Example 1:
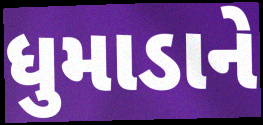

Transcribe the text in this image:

ધુમાડાને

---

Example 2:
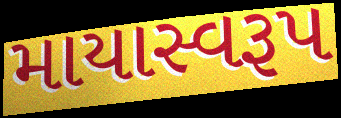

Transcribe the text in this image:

માયાસ્વરૂપ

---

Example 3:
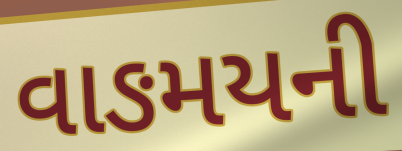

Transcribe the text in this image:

વાઙમયની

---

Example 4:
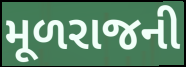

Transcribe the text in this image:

મૂળરાજની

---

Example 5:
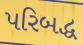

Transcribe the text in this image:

પરિબદ્ધ